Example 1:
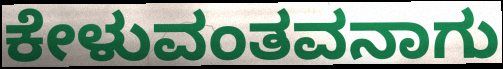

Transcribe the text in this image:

ಕೇಳುವಂತವನಾಗು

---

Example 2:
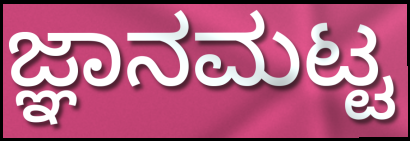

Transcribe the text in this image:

ಜ್ಞಾನಮಟ್ಟ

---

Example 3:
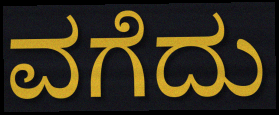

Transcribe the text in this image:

ವಗೆದು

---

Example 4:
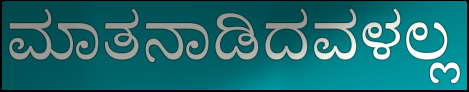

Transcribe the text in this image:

ಮಾತನಾಡಿದವಳಲ್ಲ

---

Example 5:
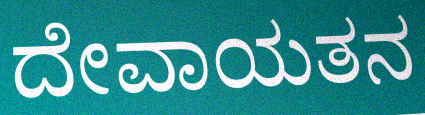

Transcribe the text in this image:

ದೇವಾಯತನ